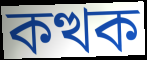
কত্থক